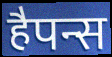
हैपन्स